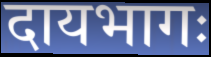
दायभागः